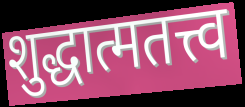
शुद्धात्मतत्त्व